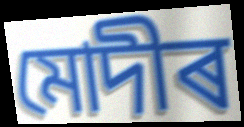
মোদীৰ